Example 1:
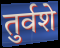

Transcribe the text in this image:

तुर्वशे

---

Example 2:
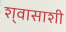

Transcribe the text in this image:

श्वासाशी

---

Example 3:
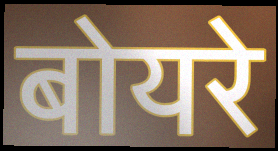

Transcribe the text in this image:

बोयरे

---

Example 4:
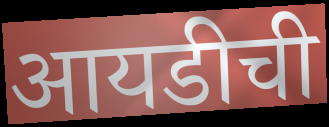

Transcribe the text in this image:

आयडीची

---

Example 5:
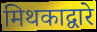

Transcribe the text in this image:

मिथकाद्वारे